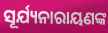
ସୂର୍ଯ୍ୟନାରାୟଣଙ୍କ